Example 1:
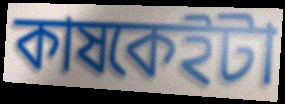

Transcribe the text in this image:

কাষকেইটা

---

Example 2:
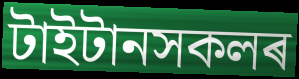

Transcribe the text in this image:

টাইটানসকলৰ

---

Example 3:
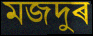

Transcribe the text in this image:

মজদুৰ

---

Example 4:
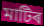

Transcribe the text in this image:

মাটিৰ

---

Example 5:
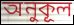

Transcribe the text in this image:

অনুকূল